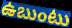
ఉబుంటు